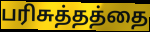
பரிசுத்தத்தை